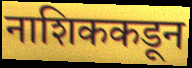
नाशिककडून